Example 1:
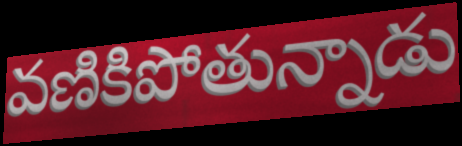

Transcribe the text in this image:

వణికిపోతున్నాడు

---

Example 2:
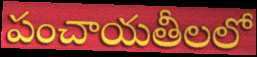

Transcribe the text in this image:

పంచాయతీలలో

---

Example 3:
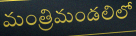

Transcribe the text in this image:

మంత్రిమండలిలో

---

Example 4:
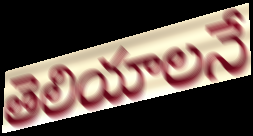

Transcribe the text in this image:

తెలియాలనే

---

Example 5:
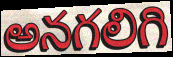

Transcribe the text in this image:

అనగలిగి